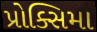
પ્રોક્સિમા